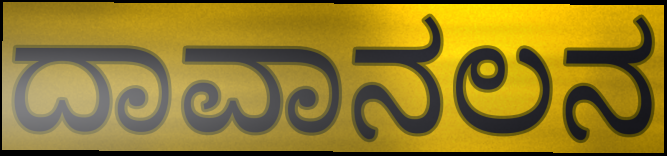
ದಾವಾನಲನ